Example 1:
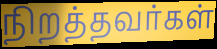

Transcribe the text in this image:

நிறத்தவர்கள்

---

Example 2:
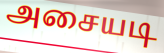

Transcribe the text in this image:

அசையடி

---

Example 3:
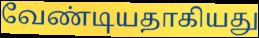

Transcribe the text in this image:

வேண்டியதாகியது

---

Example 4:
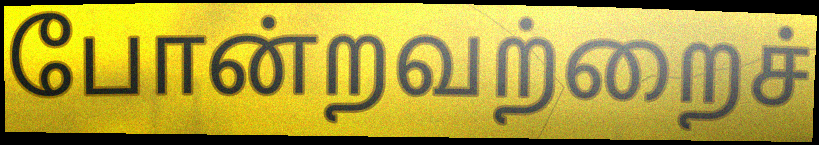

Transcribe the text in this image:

போன்றவற்றைச்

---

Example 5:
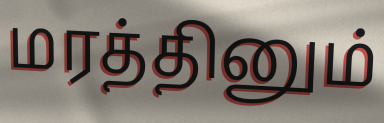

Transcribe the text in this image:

மரத்தினும்